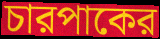
চারপাকের